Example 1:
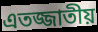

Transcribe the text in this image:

এতজ্জাতীয়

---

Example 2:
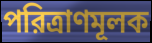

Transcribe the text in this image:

পরিত্রাণমূলক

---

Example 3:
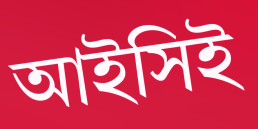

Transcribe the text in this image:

আইসিই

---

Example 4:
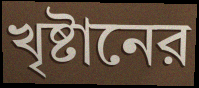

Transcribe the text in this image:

খৃষ্টানের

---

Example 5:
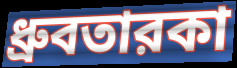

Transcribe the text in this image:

ধ্রুবতারকা